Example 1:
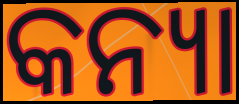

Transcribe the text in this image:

କନ୍ୟା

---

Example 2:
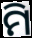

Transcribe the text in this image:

ମି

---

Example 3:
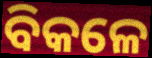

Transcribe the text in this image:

ବିକଳେ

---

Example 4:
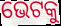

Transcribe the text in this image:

ଭେଟକୁ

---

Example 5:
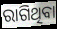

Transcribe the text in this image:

ରାଗିଥିବା